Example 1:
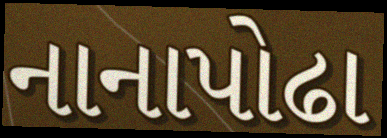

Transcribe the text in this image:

નાનાપોઢા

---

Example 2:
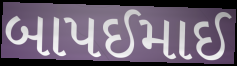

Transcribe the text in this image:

બાપઈમાઈ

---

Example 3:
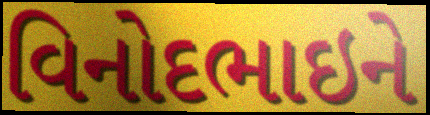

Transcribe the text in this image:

વિનોદભાઇને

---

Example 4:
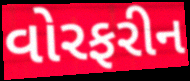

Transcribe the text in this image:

વોરફરીન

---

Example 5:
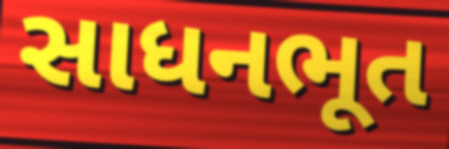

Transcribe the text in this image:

સાધનભૂત